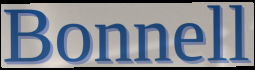
Bonnell